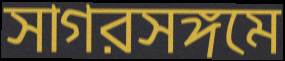
সাগরসঙ্গমে